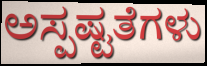
ಅಸ್ಪಷ್ಟತೆಗಳು